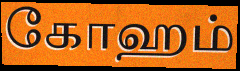
கோஹம்